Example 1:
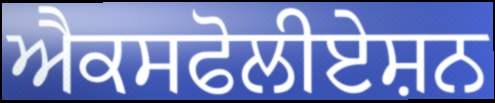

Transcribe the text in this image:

ਐਕਸਫੋਲੀਏਸ਼ਨ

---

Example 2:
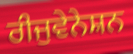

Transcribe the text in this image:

ਰੀਜੁਵੇਨੇਸ਼ਨ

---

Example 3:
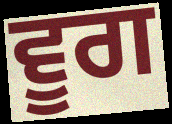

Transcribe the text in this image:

ਵੂਗ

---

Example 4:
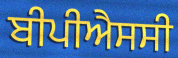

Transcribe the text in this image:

ਬੀਪੀਐਸਸੀ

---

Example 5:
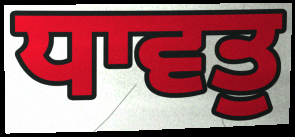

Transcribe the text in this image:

ਧਾਵਤੁ